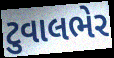
ટુવાલભેર